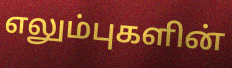
எலும்புகளின்